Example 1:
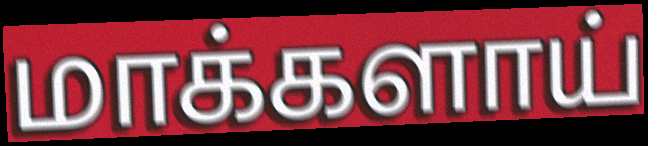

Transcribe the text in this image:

மாக்களாய்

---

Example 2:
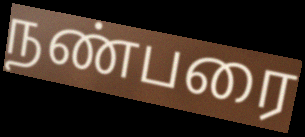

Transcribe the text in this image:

நண்பரை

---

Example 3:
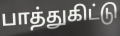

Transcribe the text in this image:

பாத்துகிட்டு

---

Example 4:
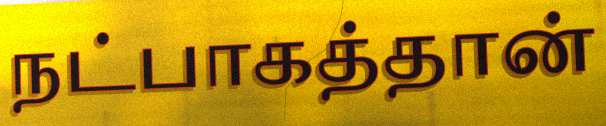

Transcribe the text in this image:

நட்பாகத்தான்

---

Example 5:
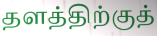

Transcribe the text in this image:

தளத்திற்குத்